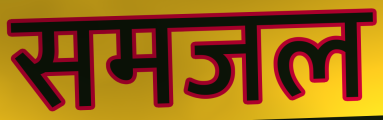
समजल